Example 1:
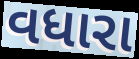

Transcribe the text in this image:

વધારા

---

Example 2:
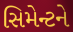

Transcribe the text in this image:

સિમેન્ટને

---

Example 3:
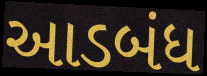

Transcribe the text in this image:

આડબંધ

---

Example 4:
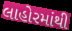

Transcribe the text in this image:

લાહોરમાંથી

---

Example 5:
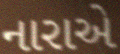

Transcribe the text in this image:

નારાએ